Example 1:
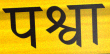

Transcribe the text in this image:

पश्वा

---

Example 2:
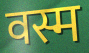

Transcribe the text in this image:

वस्म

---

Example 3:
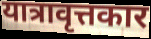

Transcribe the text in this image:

यात्रावृत्तकार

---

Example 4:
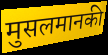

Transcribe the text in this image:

मुसलमानकी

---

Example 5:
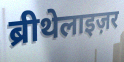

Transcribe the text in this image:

ब्रीथेलाइज़र